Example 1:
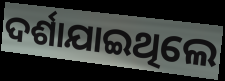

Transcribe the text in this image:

ଦର୍ଶାଯାଇଥିଲେ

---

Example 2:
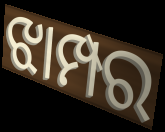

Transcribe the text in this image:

ଝାମ୍ପର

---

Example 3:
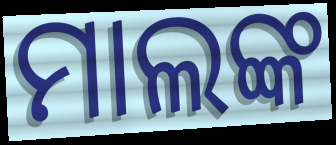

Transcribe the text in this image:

ମାଲଙ୍କ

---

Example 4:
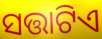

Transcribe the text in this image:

ସତ୍ତାଟିଏ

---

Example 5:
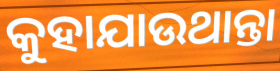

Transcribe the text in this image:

କୁହାଯାଉଥାନ୍ତା